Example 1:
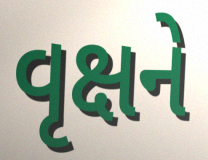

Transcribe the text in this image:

વૃક્ષને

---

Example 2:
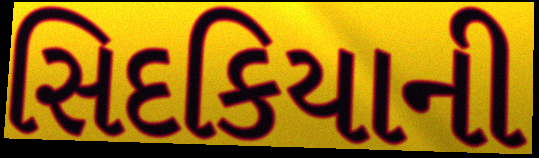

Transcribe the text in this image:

સિદકિયાની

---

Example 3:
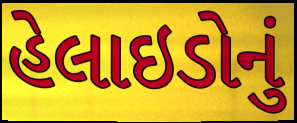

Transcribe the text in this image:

હેલાઇડોનું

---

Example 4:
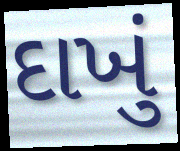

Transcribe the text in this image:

દાખું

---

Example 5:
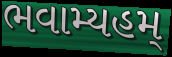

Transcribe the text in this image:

ભવામ્યહમ્